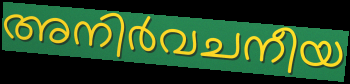
അനിർവചനീയ